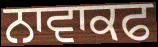
ਨਾਵਾਕਫ